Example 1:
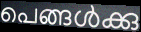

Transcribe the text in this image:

പെങ്ങൾക്കു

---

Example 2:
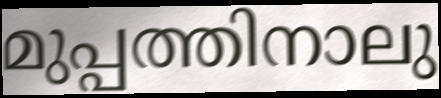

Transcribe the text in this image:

മുപ്പത്തിനാലു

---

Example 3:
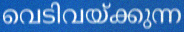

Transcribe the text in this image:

വെടിവയ്ക്കുന്ന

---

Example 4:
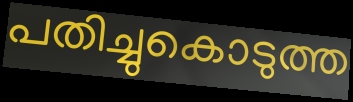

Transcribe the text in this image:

പതിച്ചുകൊടുത്ത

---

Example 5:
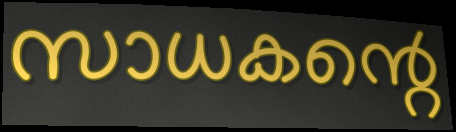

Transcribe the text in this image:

സാധകന്റെ